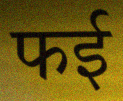
फई